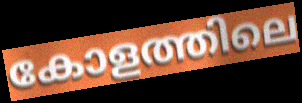
കോളത്തിലെ